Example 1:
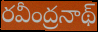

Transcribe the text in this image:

రవీంద్రనాథ్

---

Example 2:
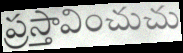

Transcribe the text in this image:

ప్రస్తావించుచు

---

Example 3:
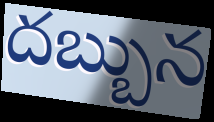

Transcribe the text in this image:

దబ్బున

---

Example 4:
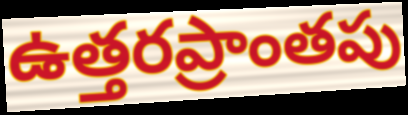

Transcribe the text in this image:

ఉత్తరప్రాంతపు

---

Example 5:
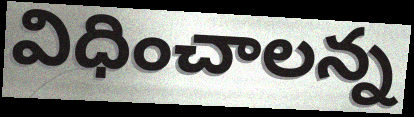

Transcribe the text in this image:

విధించాలన్న